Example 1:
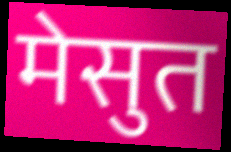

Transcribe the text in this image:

मेसुत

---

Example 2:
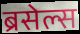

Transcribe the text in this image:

ब्रसेल्स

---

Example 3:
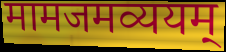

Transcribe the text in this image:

मामजमव्ययम्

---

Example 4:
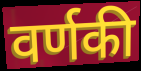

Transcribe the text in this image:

वर्णकी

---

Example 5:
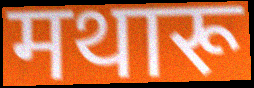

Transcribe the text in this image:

मथारू